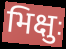
भिक्षुः